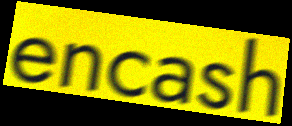
encash